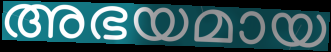
അഭയമായ